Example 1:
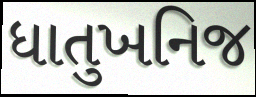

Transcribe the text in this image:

ધાતુખનિજ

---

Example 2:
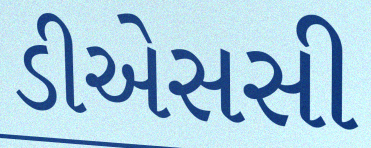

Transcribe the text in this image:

ડીએસસી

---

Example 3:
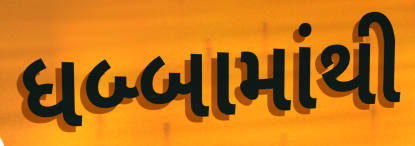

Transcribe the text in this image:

ધબ્બામાંથી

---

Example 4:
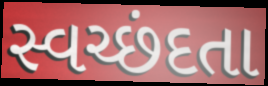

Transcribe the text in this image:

સ્વચ્છંદતા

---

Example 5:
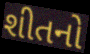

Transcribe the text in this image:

શીતનો